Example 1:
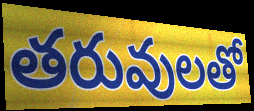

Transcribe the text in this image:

తరువులతో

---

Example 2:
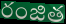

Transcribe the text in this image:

రంజిత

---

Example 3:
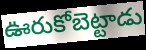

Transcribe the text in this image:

ఊరుకోబెట్టాడు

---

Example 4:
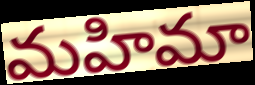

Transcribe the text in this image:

మహిమా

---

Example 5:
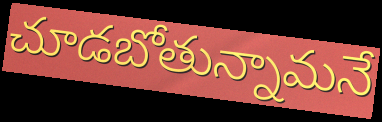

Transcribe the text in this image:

చూడబోతున్నామనే